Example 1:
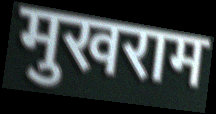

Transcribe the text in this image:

मुखराम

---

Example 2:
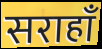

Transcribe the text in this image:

सराहाँ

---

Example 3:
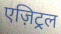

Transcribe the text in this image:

एज़िट्रल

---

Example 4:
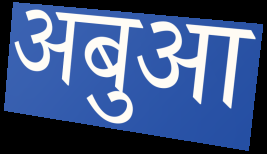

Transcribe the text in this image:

अबुआ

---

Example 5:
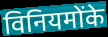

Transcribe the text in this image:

विनियमोंके